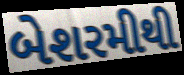
બેશરમીથી